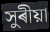
সুৰীয়া